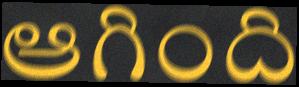
ఆగింది